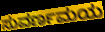
ಸುವರ್ಣಮಯ